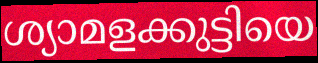
ശ്യാമളക്കുട്ടിയെ